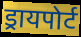
ड्रायपोर्ट